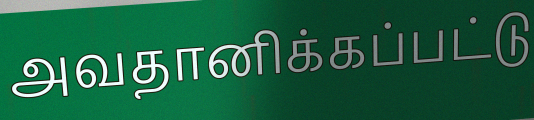
அவதானிக்கப்பட்டு